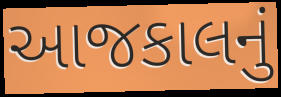
આજકાલનું